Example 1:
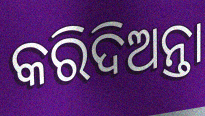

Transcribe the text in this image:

କରିଦିଅନ୍ତା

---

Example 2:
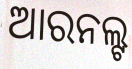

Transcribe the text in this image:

ଆରନଲ୍ଟ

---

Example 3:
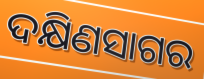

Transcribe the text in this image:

ଦକ୍ଷିଣସାଗର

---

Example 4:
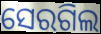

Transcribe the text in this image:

ସେରଗିଲ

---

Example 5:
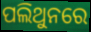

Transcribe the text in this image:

ପଲିଥୁନରେ